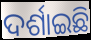
ଦର୍ଶାଇଛି